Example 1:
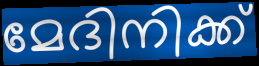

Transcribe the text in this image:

മേദിനിക്ക്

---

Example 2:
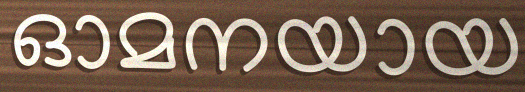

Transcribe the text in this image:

ഓമനയായ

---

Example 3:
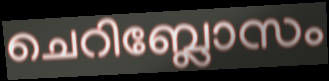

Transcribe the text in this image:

ചെറിബ്ലോസം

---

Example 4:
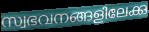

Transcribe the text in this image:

സ്വഭവനങ്ങളിലേക്കു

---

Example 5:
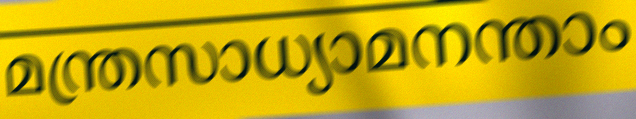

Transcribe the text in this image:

മന്ത്രസാധ്യാമനന്താം